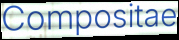
Compositae